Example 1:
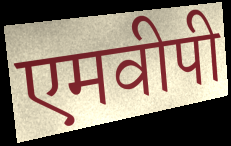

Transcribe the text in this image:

एमवीपी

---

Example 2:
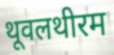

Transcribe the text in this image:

थूवलथीरम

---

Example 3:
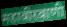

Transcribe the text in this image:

महावीरवाणी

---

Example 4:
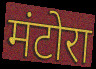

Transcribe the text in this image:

मंटोरा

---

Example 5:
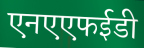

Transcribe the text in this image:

एनएएफईडी